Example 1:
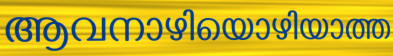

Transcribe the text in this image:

ആവനാഴിയൊഴിയാത്ത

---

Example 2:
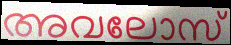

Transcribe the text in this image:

അവലോസ്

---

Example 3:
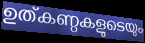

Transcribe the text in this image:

ഉത്കണ്ഠകളുടെയും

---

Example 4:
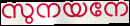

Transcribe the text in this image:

സുനയനേ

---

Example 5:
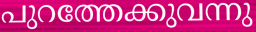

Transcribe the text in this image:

പുറത്തേക്കുവന്നു